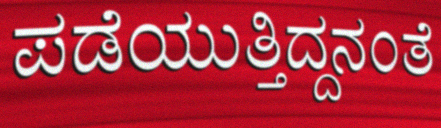
ಪಡೆಯುತ್ತಿದ್ದನಂತೆ